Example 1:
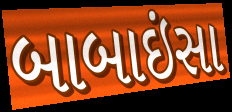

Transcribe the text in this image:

બાબાઇંસા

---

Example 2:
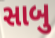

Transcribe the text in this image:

સાબુ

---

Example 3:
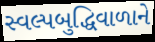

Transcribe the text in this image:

સ્વલ્પબુદ્ધિવાળાને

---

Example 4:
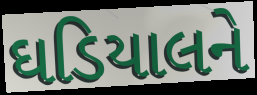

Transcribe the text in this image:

ઘડિયાલને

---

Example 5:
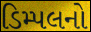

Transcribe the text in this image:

ડિમ્પલનો